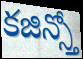
కజిన్స్తో